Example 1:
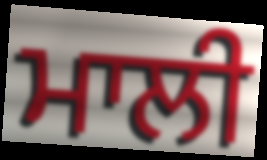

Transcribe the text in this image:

ਮਾਲੀ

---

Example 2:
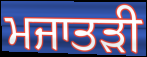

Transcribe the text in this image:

ਮਜਾਤੜੀ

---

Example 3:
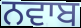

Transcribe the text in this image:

ਨਵਾਬ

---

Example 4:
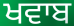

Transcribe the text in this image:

ਖਵਾਬ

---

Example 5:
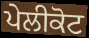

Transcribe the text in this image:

ਪੇਲੀਕੋਟ